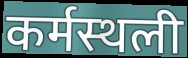
कर्मस्थली